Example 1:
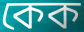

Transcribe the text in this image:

কেক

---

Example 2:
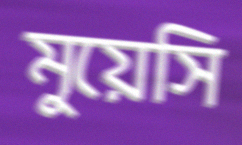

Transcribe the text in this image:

মুয়েসি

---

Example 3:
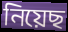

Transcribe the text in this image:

নিয়েছ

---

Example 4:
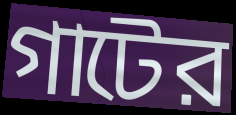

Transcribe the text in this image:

গাটের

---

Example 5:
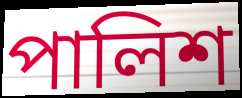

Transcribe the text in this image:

পালিশ